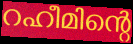
റഹീമിന്റെ